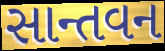
સાન્તવન